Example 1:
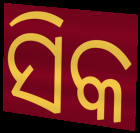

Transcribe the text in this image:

ସିକ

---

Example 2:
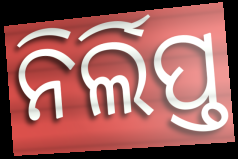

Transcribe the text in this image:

ନିର୍ଲିପ୍ତ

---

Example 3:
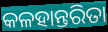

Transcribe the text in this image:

କଳହାନ୍ତରିତା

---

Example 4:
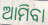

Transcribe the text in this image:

ଆମିବା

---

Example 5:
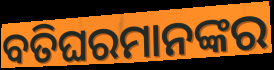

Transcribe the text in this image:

ବତିଘରମାନଙ୍କର